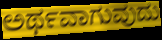
ಅರ್ಥವಾಗುವುದು